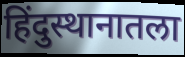
हिंदुस्थानातला